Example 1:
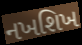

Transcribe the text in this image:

નખશિખ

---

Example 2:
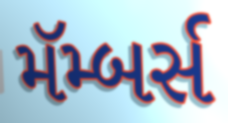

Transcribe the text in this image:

મૅમ્બર્સ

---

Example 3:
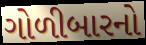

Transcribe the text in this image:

ગોળીબારનો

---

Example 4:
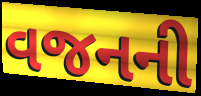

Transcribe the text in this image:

વજનની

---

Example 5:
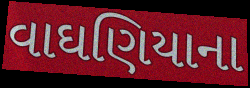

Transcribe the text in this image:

વાઘણિયાના